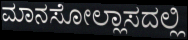
ಮಾನಸೋಲ್ಲಾಸದಲ್ಲಿ